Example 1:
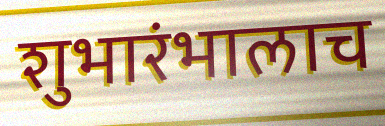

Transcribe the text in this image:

शुभारंभालाच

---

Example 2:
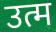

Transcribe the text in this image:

उत्म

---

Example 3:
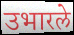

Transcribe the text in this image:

उभारले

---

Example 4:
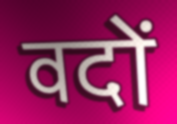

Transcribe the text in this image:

वदों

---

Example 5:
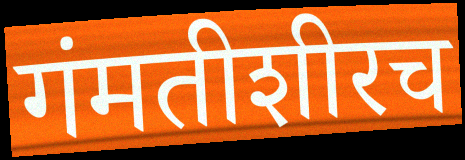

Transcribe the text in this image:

गंमतीशीरच